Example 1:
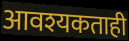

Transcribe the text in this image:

आवश्यकताही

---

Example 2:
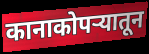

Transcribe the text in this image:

कानाकोपऱ्यातून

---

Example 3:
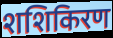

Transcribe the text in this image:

शशिकिरण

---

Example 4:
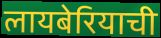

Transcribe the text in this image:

लायबेरियाची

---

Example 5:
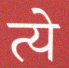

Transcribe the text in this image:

त्ये